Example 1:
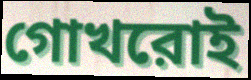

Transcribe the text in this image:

গোখরোই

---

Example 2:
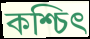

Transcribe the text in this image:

কশ্চিৎ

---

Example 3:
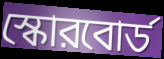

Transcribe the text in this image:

স্কোরবোর্ড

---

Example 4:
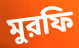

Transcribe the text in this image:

মুরফি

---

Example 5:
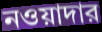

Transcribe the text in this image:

নওয়াদার